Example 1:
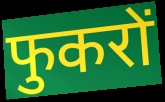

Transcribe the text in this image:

फुकरों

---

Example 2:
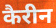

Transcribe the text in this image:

कैरीन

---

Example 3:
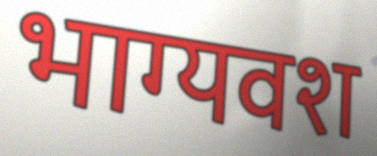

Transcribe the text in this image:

भाग्यवश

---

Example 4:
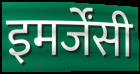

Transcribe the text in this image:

इमर्जेंसी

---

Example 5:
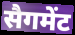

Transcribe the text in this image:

सैगमेंट